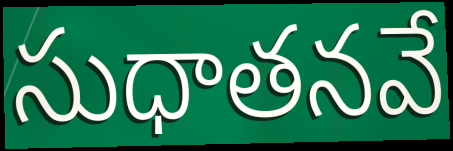
సుధాతనవే